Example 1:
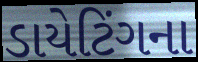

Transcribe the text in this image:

ડાયેટિંગના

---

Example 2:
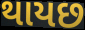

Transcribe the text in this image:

થાયછ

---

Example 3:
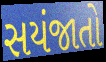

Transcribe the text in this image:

સયંજાતો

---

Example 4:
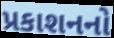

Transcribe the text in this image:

પ્રકાશનનો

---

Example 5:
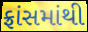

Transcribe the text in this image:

ફ્રાંસમાંથી